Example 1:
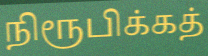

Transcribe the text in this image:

நிரூபிக்கத்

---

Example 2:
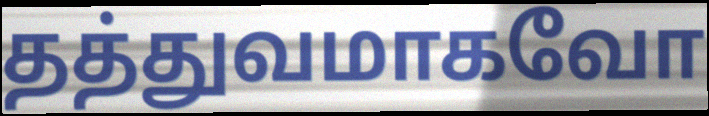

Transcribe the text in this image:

தத்துவமாகவோ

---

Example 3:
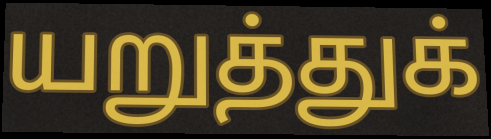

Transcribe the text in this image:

யறுத்துக்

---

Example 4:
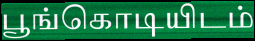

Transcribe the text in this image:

பூங்கொடியிடம்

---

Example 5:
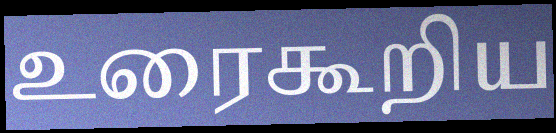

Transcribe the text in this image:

உரைகூறிய